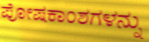
ಪೋಷಕಾಂಶಗಳನ್ನು